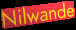
Nilwande